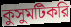
কুসুমটিকরি